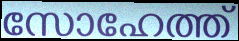
സോഹേത്ത്